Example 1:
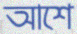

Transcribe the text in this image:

আশে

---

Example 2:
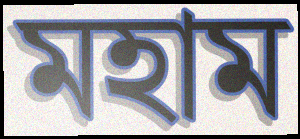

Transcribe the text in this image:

মহাম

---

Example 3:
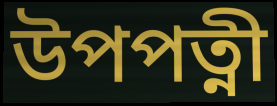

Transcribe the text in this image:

উপপত্নী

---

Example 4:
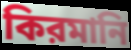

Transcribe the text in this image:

কিরমানি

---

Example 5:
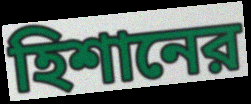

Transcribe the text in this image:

হিশানের